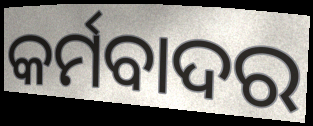
କର୍ମବାଦର